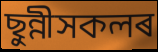
ছুন্নীসকলৰ